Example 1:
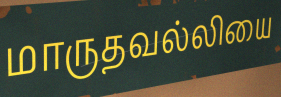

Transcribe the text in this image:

மாருதவல்லியை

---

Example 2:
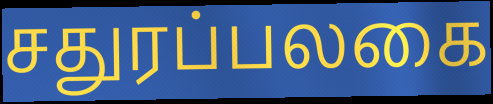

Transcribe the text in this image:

சதுரப்பலகை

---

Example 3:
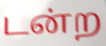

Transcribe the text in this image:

டன்ற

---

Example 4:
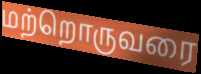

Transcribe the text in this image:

மற்றொருவரை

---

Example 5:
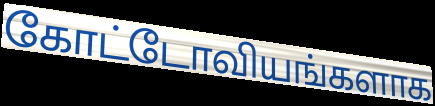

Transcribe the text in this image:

கோட்டோவியங்களாக